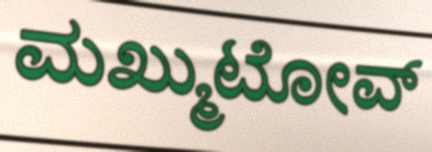
ಮಖ್ಮುಟೋವ್